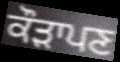
ਕੌੜਾਪਣ